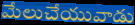
మేలుచేయువాడు